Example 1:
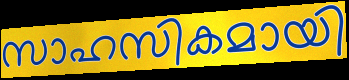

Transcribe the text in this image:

സാഹസികമായി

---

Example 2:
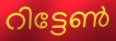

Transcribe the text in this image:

റിട്ടേൺ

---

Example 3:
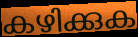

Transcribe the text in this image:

കഴിക്കുക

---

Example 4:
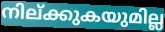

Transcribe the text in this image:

നില്ക്കുകയുമില്ല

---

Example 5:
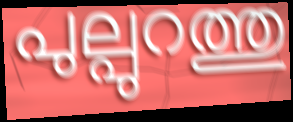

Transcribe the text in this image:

പുല്പുറത്തു